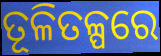
ତୂଳିତଳ୍ପରେ